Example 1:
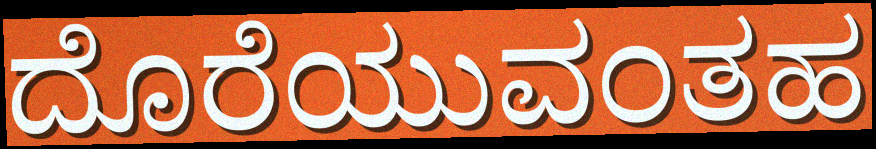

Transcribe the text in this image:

ದೊರೆಯುವಂತಹ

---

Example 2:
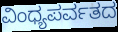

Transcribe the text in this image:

ವಿಂಧ್ಯಪರ್ವತದ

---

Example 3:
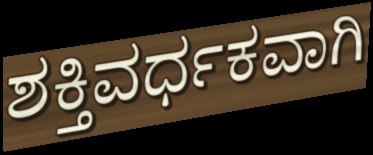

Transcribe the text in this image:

ಶಕ್ತಿವರ್ಧಕವಾಗಿ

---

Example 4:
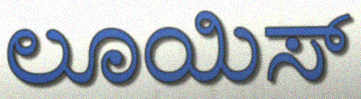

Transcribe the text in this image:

ಲೂಯಿಸ್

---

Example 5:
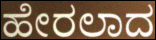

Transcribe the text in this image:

ಹೇರಲಾದ